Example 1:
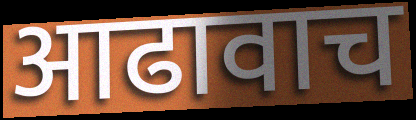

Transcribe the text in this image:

आढावाच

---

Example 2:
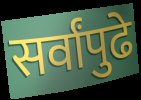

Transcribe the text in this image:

सर्वांपुढे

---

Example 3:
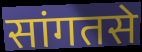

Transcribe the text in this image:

सांगतसे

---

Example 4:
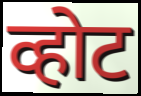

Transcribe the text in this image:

व्होट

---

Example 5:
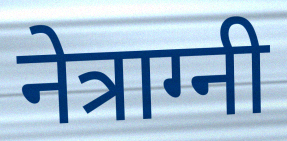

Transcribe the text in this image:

नेत्राग्नी